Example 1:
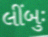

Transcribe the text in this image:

લીંબુઃ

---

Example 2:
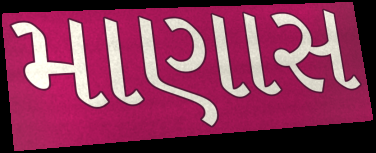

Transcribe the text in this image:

માણાસ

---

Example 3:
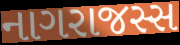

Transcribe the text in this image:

નાગરાજસ્સ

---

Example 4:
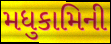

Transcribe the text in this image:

મધુકામિની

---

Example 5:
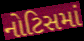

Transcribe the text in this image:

નોટિસમાં